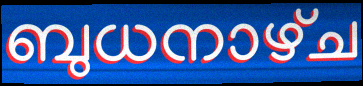
ബുധനാഴ്‌ച